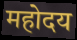
महोदय